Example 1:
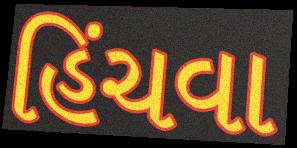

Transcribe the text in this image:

હિંચવા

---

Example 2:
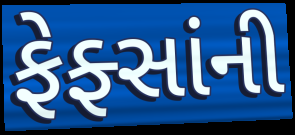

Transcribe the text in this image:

ફેફ્સાંની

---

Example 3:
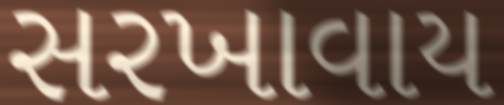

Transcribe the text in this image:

સરખાવાય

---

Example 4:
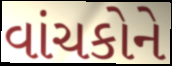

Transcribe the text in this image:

વાંચકોને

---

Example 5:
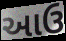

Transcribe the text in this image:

આઉ